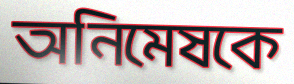
অনিমেষকে